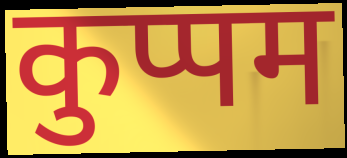
कुप्पम